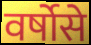
वर्षोसे